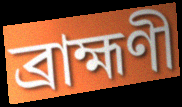
ব্ৰাহ্মণী